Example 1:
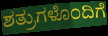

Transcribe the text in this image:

ಶತ್ರುಗಳೊಂದಿಗೆ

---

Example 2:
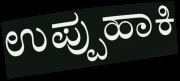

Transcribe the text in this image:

ಉಪ್ಪುಹಾಕಿ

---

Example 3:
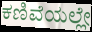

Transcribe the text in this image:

ಕಣಿವೆಯಲ್ಲೇ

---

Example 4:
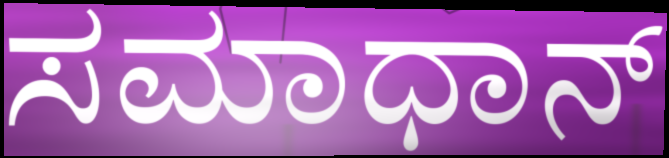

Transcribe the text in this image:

ಸಮಾಧಾನ್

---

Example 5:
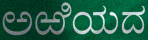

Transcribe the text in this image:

ಅಱಿಯದ